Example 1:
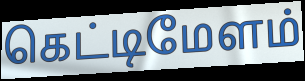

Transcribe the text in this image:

கெட்டிமேளம்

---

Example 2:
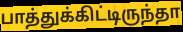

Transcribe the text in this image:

பாத்துக்கிட்டிருந்தா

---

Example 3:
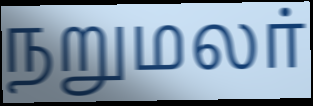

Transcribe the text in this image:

நறுமலர்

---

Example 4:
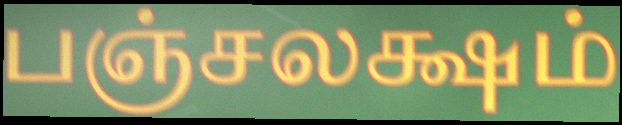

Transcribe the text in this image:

பஞ்சலக்ஷம்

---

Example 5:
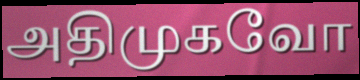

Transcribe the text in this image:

அதிமுகவோ